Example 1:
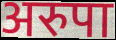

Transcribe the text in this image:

अरुपा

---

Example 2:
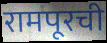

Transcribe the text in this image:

रामपूरची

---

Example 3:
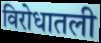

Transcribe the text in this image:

विरोधातली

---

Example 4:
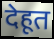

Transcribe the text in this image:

देहूत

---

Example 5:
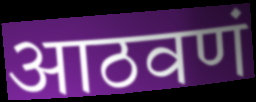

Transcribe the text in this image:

आठवणं